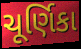
ચૂર્ણિકા